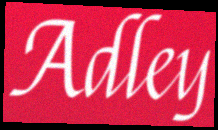
Adley